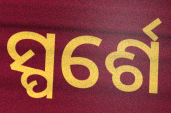
ସ୍ପର୍ଶେ